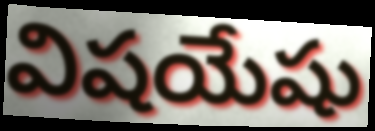
విషయేషు